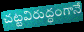
చట్టవిరుద్ధంగానే